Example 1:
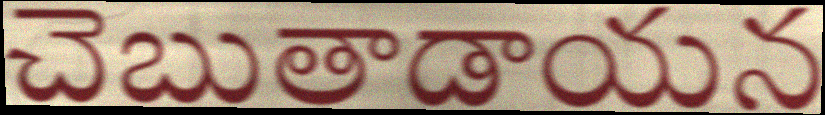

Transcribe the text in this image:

చెబుతాడాయన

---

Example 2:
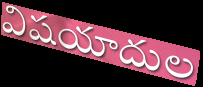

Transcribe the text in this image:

విషయాదుల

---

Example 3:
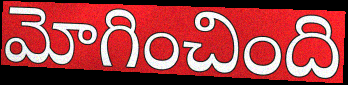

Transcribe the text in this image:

మోగించింది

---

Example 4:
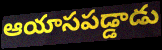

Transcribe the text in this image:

ఆయాసపడ్డాడు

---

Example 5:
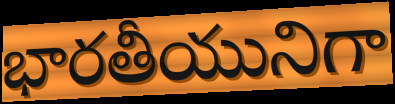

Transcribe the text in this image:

భారతీయునిగా